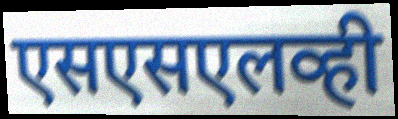
एसएसएलव्ही